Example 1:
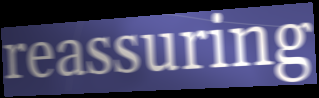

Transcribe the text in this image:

reassuring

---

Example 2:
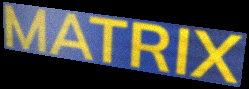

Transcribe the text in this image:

MATRIX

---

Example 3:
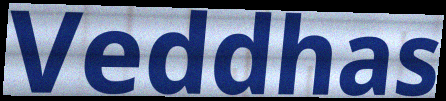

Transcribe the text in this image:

Veddhas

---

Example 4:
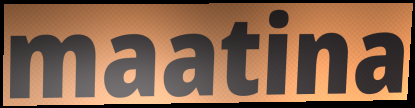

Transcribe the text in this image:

maatina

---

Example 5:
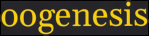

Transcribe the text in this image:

oogenesis